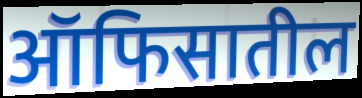
ऑफिसातील